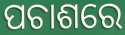
ପଚାଶରେ